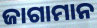
ଜାଗାମାନ